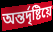
অন্তৰ্দৃষ্টিয়ে